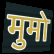
मुमो